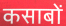
कसाबों